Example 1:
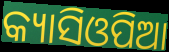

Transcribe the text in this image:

କ୍ୟାସିଓପିଆ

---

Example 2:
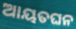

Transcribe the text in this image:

ଆୟତଘନ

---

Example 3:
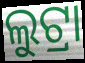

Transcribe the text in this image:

ଲୁଟ୍ରା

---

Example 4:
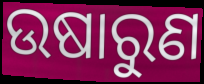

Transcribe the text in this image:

ଉଷାରୁଣ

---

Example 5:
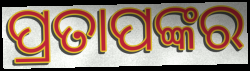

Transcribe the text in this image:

ପ୍ରତାପଙ୍କର